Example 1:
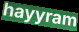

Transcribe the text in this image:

hayyram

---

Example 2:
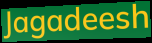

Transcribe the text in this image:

Jagadeesh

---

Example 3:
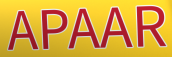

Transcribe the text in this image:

APAAR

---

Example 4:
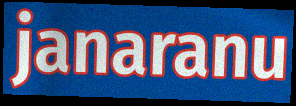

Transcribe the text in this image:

janaranu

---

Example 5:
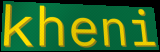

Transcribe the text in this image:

kheni